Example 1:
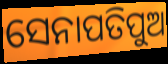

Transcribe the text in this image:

ସେନାପତିପୁଅ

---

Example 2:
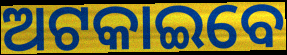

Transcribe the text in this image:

ଅଟକାଇବେ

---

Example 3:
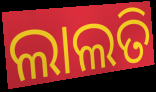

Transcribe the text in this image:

ଲାଲତି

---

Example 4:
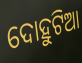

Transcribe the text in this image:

ଦୋହୁଟିଆ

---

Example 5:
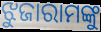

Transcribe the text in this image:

ଝୁଜାରାମଙ୍କୁ